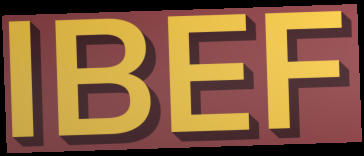
IBEF